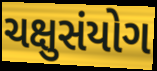
ચક્ષુસંયોગ